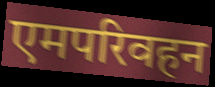
एमपरिवहन